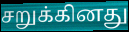
சறுக்கினது